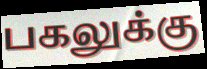
பகலுக்கு